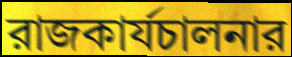
রাজকার্যচালনার